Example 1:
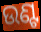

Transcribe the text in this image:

ଉଣ୍ଟ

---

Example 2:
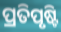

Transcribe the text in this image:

ପ୍ରତିପୃଷ୍ଟି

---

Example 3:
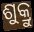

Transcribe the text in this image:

ଶୁକ୍ରୁ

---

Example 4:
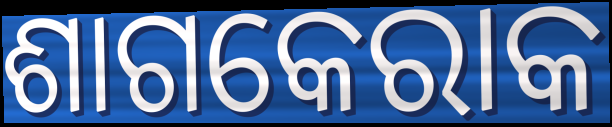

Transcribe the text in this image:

ଶାଗକେରାକ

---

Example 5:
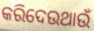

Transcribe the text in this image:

କରିଦେଉଥାଉଁ